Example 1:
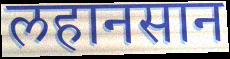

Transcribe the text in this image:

लहानसान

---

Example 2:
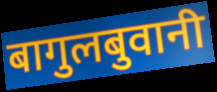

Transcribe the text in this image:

बागुलबुवानी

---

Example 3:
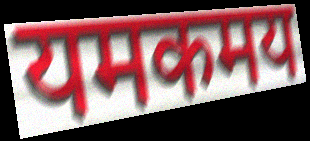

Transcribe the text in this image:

यमकमय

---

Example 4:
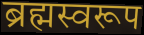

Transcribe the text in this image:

ब्रह्मस्वरूप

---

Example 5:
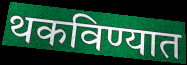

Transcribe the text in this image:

थकविण्यात